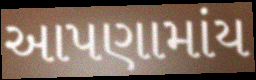
આપણામાંય